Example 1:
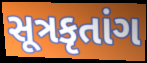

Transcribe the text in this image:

સૂત્રકૃતાંગ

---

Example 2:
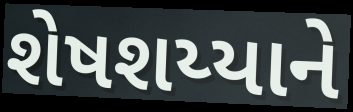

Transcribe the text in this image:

શેષશય્યાને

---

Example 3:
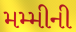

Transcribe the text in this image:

મમ્મીની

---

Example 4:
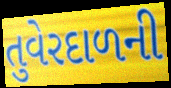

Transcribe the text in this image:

તુવેરદાળની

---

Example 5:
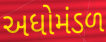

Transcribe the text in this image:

અધોમંડળ